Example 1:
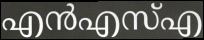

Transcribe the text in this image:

എൻഎസ്എ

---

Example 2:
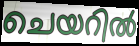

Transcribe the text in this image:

ചെയറിൽ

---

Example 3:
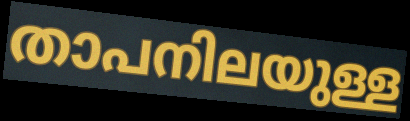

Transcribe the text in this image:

താപനിലയുള്ള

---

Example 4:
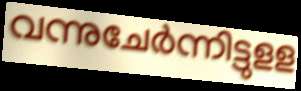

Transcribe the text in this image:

വന്നുചേർന്നിട്ടുളള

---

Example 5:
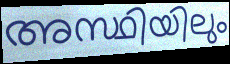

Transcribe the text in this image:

അസ്ഥിയിലും